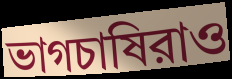
ভাগচাষিরাও